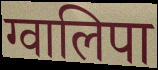
ग्वालिपा